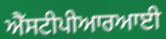
ਐੱਸਟੀਪੀਆਰਆਈ